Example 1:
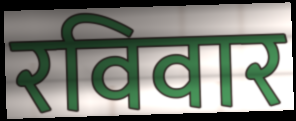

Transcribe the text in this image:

रविवार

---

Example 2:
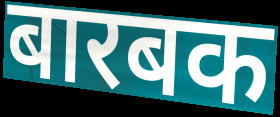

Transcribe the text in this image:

बारबक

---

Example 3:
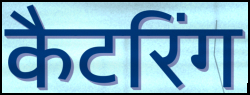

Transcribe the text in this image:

कैटरिंग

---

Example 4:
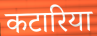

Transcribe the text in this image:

कटारिया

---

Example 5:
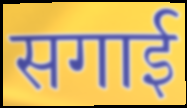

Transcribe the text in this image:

सगाई